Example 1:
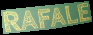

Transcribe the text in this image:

RAFALE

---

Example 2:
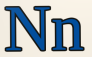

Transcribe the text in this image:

Nn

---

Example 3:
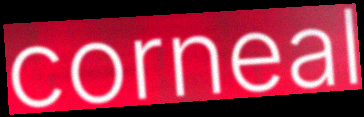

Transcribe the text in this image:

corneal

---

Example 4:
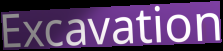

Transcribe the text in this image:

Excavation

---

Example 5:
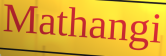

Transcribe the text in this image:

Mathangi